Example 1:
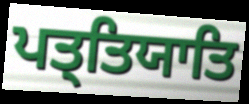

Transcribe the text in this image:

ਪਤ੍ਤਿਯਾਤਿ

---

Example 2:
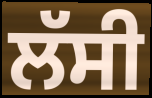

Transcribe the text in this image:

ਲੱਸੀ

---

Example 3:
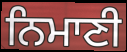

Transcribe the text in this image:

ਨਿਮਾਣੀ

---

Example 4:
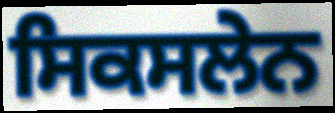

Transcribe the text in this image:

ਸਿਕਸਲੇਨ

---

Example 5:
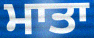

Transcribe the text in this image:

ਮਾਤਾ